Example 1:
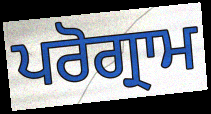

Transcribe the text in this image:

ਪਰੋਗ੍ਰਾਮ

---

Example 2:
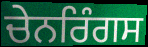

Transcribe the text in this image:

ਚੇਨਰਿੰਗਸ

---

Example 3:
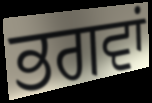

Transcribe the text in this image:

ਭਗਵਾਂ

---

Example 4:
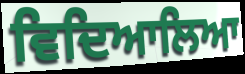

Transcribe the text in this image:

ਵਿਦਿਆਲਿਆ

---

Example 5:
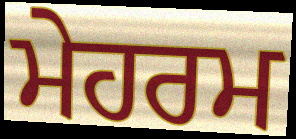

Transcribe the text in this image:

ਮੇਹਰਮ